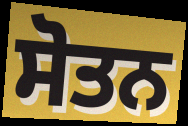
ਸੋਤਨ